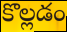
కొల్లడం